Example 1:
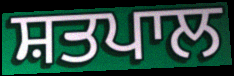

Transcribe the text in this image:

ਸ਼ਤਪਾਲ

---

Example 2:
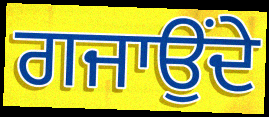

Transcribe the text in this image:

ਗਜਾਉਂਦੇ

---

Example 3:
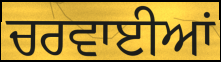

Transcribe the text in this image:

ਚਰਵਾਈਆਂ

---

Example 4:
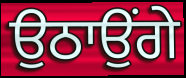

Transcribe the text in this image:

ਉਠਾਉਂਗੇ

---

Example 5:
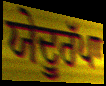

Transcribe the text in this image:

ਯੇਦੂਰੱਪਾ